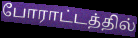
போராட்டத்தில்